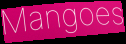
Mangoes